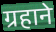
ग्रहाने